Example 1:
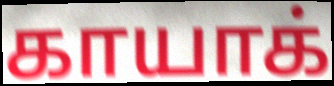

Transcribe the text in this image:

காயாக்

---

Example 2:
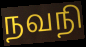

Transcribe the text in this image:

நவநி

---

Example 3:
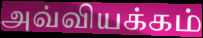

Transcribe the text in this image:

அவ்வியக்கம்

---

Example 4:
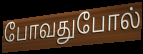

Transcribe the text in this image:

போவதுபோல்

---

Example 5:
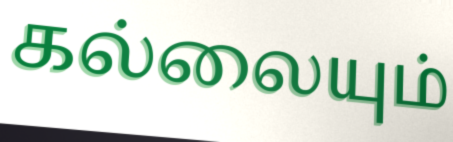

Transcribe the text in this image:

கல்லையும்